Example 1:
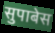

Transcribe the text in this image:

सुपाबेस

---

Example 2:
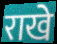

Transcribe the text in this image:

राखे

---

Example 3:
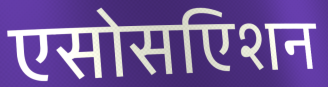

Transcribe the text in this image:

एसोसएिशन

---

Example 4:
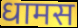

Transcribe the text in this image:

धामस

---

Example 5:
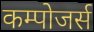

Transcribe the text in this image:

कम्पोजर्स